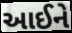
આઈને